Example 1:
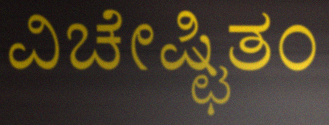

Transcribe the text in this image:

ವಿಚೇಷ್ಟಿತಂ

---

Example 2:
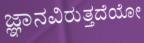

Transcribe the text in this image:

ಜ್ಞಾನವಿರುತ್ತದೆಯೋ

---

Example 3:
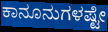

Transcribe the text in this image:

ಕಾನೂನುಗಳಷ್ಟೇ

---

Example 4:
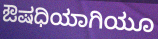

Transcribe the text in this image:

ಔಷಧಿಯಾಗಿಯೂ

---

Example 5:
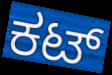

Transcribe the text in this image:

ಕಟ್